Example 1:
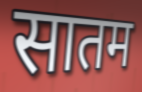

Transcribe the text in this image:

सातम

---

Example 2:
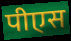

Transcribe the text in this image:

पीएस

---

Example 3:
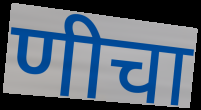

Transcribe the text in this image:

णीचा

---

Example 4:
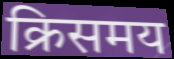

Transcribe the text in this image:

क्रिसमय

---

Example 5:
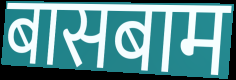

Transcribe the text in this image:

बासबाम